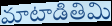
మాటాడితిమి